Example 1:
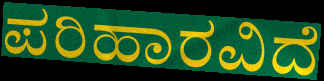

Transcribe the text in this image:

ಪರಿಹಾರವಿದೆ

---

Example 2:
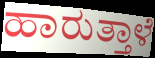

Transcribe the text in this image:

ಹಾರುತ್ತಾಳೆ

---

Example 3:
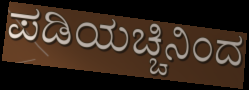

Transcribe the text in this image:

ಪಡಿಯಚ್ಚಿನಿಂದ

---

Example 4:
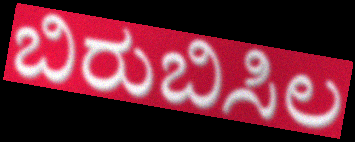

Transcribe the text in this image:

ಬಿರುಬಿಸಿಲ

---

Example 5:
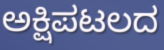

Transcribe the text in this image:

ಅಕ್ಷಿಪಟಲದ